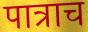
पात्राच